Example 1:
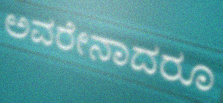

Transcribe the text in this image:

ಅವರೇನಾದರೂ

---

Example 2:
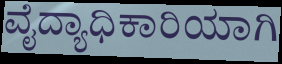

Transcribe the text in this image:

ವೈದ್ಯಾಧಿಕಾರಿಯಾಗಿ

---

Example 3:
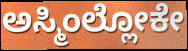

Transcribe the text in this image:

ಅಸ್ಮಿಂಲ್ಲೋಕೇ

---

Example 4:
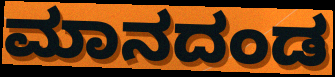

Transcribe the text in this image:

ಮಾನದಂಡ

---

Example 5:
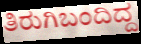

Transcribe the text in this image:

ತಿರುಗಿಬಂದಿದ್ದ